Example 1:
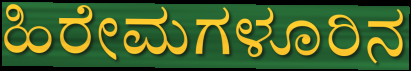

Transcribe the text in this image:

ಹಿರೇಮಗಳೂರಿನ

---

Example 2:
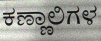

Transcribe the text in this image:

ಕಣ್ಣಾಲಿಗಳ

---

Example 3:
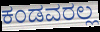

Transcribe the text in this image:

ಕಂಡವರಲ್ಲ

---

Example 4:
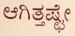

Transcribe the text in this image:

ಆಗಿತ್ತಷ್ಟೇ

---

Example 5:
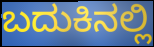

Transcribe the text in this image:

ಬದುಕಿನಲ್ಲಿ